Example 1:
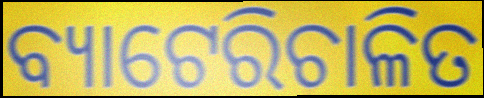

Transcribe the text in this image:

ବ୍ୟାଟେରିଚାଳିତ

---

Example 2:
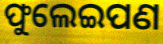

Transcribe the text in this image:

ଫୁଲେଇପଣ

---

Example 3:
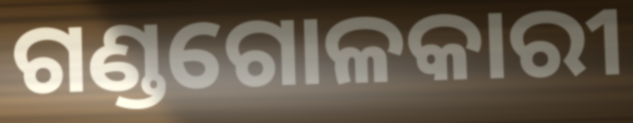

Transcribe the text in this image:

ଗଣ୍ଡଗୋଳକାରୀ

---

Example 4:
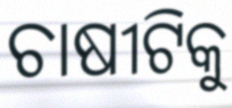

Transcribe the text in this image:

ଚାଷୀଟିକୁ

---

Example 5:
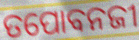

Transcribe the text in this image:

ତପୋବନଜୀ